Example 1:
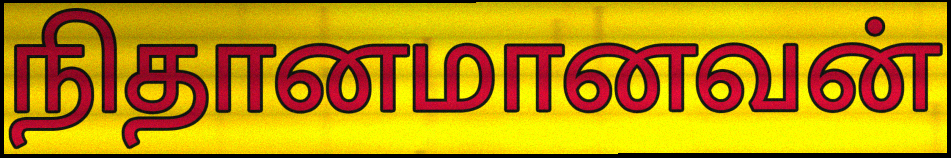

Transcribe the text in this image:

நிதானமானவன்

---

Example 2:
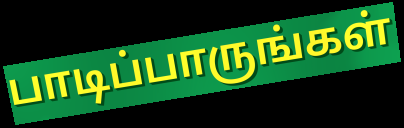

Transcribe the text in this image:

பாடிப்பாருங்கள்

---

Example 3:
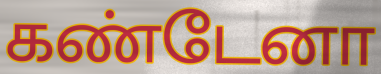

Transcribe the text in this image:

கண்டேனா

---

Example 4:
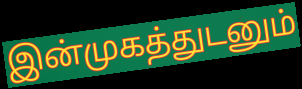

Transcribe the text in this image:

இன்முகத்துடனும்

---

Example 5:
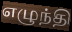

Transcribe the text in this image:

எழுந்தி